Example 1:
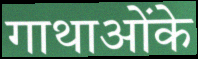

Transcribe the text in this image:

गाथाओंके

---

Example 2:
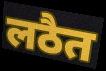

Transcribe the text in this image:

लठैत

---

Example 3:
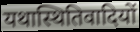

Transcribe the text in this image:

यथास्थितिवादियों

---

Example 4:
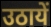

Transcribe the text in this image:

उठायें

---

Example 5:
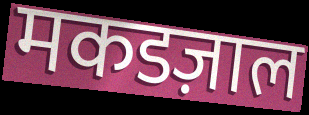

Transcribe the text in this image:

मकडज़ाल